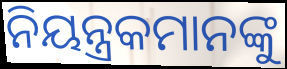
ନିୟନ୍ତ୍ରକମାନଙ୍କୁ